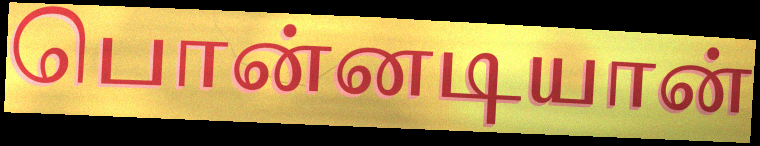
பொன்னடியான்